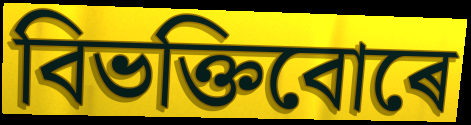
বিভক্তিবোৰে